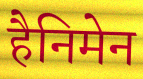
हैनिमेन